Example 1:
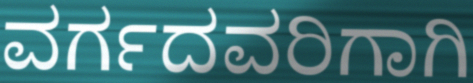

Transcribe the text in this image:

ವರ್ಗದವರಿಗಾಗಿ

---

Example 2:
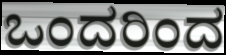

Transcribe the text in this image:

ಒಂದರಿಂದ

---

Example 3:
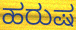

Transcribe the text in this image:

ಹರುಷ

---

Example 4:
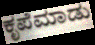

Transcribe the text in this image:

ಕೃಪೆಮಾಡು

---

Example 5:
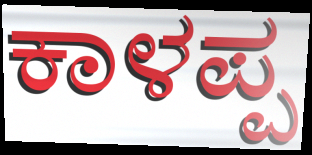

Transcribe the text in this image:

ಕಾಳಪ್ಪ